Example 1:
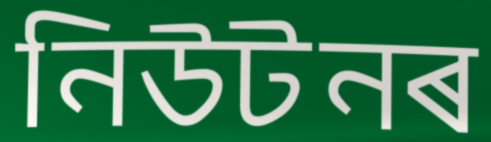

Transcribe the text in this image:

নিউটনৰ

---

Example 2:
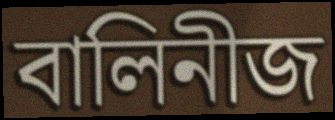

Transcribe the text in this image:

বালিনীজ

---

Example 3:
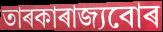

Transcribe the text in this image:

তাৰকাৰাজ্যবোৰ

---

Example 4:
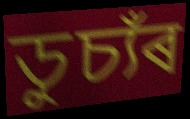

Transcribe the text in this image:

ডুচ্যঁৰ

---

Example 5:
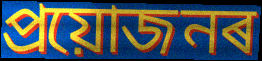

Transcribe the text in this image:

প্ৰয়োজনৰ